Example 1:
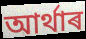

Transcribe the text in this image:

আৰ্থাৰ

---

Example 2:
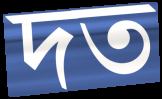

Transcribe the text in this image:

দত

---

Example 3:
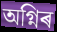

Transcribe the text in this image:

অগ্নিৰ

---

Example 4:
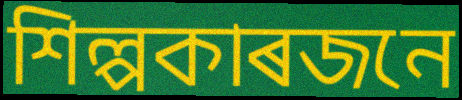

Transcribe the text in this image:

শিল্পকাৰজনে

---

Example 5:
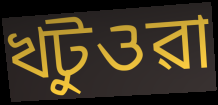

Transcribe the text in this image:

খটুওৱা